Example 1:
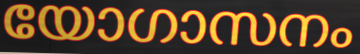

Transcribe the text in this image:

യോഗാസനം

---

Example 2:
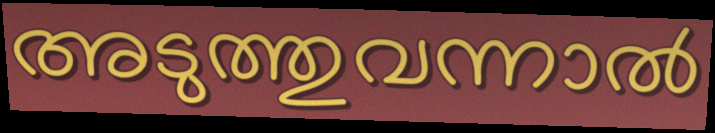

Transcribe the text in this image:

അടുത്തുവന്നാൽ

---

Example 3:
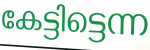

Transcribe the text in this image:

കേട്ടിട്ടെന്ന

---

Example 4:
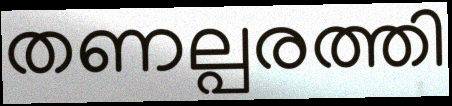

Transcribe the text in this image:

തണല്പരത്തി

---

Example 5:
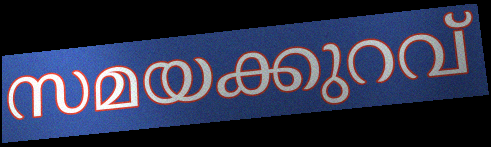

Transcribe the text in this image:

സമയക്കുറവ്